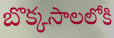
బొక్కసాలలోకి